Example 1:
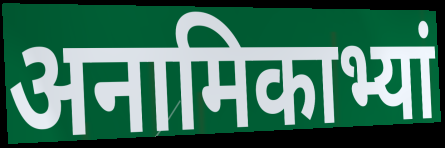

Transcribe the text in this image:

अनामिकाभ्यां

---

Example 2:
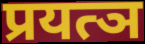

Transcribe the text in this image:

प्रयत्ञ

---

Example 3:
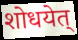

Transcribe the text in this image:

शोधयेत्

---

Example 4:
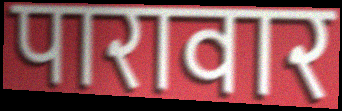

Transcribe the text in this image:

पारावार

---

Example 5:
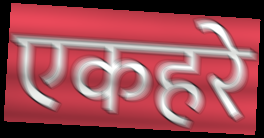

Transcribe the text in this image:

एकहरे